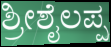
ಶ್ರೀಶೈಲಪ್ಪ